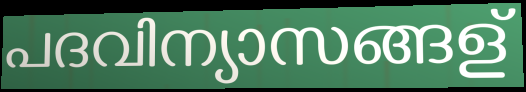
പദവിന്യാസങ്ങള്